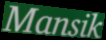
Mansik